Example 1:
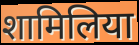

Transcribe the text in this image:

शामिलिया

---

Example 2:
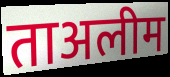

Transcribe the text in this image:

ताअलीम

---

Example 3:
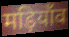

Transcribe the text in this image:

मड़ियाँव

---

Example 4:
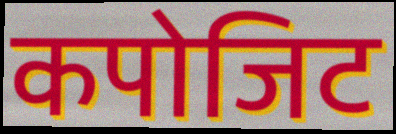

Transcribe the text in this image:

कपोजिट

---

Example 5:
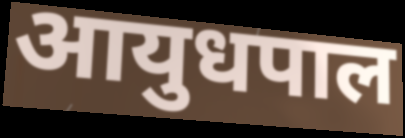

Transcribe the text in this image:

आयुधपाल